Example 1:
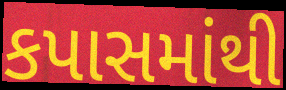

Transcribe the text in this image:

કપાસમાંથી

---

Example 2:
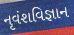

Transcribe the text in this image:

નૃવંશવિજ્ઞાન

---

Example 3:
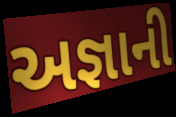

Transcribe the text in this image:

અજ્ઞાની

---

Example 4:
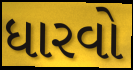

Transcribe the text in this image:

ધારવો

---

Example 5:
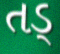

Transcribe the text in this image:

તડ્